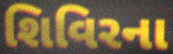
શિવિરના